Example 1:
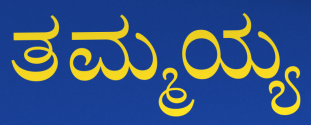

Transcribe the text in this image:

ತಮ್ಮಯ್ಯ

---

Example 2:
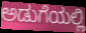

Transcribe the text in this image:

ಅಡುಗೆಯಲ್ಲಿ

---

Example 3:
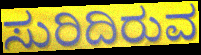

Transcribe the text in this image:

ಸುರಿದಿರುವ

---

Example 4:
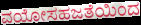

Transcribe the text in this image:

ವಯೋಸಹಜತೆಯಿಂದ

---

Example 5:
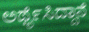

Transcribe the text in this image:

ಅರ್ಥೈಸಿದ್ದಾನೆ